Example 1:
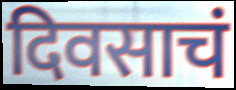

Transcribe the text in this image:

दिवसाचं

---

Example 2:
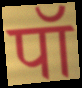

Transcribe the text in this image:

पॉ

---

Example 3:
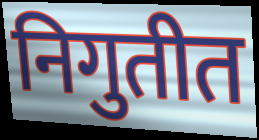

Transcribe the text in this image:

निगुतीत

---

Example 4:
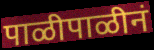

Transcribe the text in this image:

पाळीपाळीनं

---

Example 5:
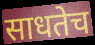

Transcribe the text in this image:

साधतेच